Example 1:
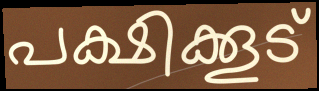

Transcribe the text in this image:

പക്ഷിക്കൂട്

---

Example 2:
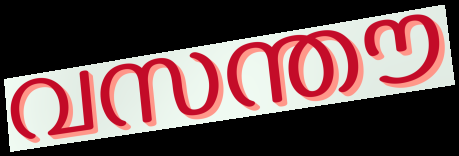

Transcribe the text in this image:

വസന്തൗ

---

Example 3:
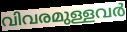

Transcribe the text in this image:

വിവരമുള്ളവർ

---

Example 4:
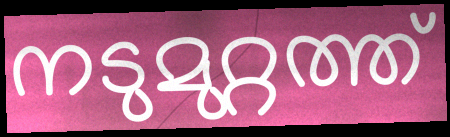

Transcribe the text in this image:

നടുമുറ്റത്ത്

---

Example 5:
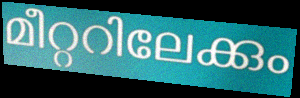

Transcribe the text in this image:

മീറ്ററിലേക്കും